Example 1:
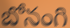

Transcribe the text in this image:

బోనంగి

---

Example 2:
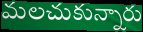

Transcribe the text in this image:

మలచుకున్నారు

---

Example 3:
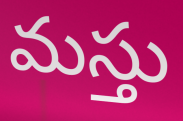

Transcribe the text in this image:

మస్తు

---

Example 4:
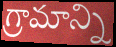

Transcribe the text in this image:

గ్రామాన్ని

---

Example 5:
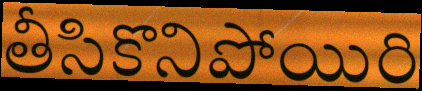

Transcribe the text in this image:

తీసికొనిపోయిరి